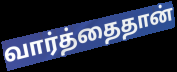
வார்த்தைதான்